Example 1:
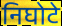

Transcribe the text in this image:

निघोटे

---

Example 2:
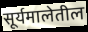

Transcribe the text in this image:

सूर्यमालेतील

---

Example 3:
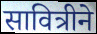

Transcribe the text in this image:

सावित्रीने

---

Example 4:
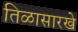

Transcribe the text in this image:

तिळासारखे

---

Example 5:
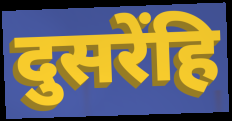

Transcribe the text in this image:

दुसरेंहि